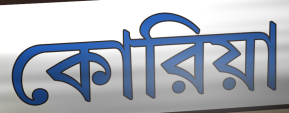
কোরিয়া